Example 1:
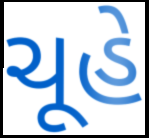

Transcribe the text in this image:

ચૂહે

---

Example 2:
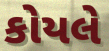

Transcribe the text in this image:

કોયલે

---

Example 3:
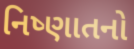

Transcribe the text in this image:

નિષ્ણાતનો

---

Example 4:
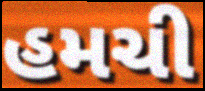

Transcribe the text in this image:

હમચી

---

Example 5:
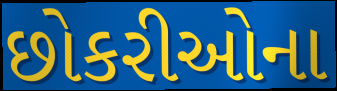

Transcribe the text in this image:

છોકરીઓના